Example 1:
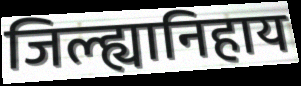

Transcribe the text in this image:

जिल्ह्यानिहाय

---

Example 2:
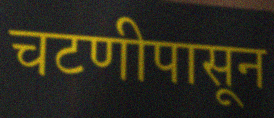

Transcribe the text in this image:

चटणीपासून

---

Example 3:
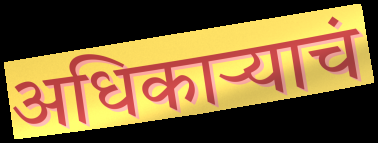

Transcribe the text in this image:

अधिकाऱ्याचं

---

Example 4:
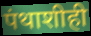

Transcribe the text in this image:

पंथाशीही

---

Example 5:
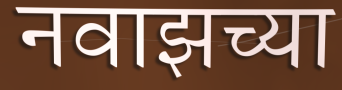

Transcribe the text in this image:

नवाझच्या